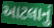
આટલાનું